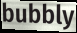
bubbly